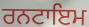
ਰਨਟਾਇਮ